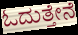
ಓದುತ್ತೇನೆ